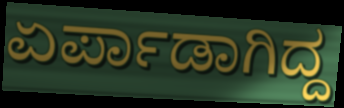
ಏರ್ಪಾಡಾಗಿದ್ದ